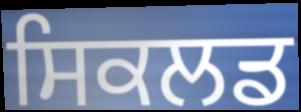
ਸਿਕਲਡ